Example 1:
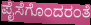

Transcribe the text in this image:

ಪೈಸೆಗೊಂದರಂತೆ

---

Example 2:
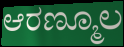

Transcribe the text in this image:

ಆರಣ್ಮೂಲ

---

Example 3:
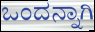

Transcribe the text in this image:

ಒಂದನ್ನಾಗಿ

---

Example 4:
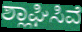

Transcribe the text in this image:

ಶ್ಲಾಘಿಸಿವೆ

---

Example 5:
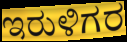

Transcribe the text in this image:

ಇರುಳಿಗರ